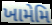
ખામેમિ